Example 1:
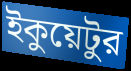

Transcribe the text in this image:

ইকুয়েটুর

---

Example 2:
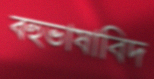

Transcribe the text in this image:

বহুভাষাবিদ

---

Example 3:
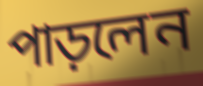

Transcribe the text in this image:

পাড়লেন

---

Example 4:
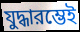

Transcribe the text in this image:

যুদ্ধারম্ভেই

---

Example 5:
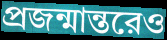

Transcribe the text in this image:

প্রজন্মান্তরেও